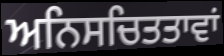
ਅਨਿਸਚਿਤਤਾਵਾਂ